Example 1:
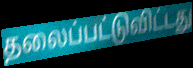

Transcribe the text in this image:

தலைப்பட்டுவிட்டது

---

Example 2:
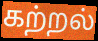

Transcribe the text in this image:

கற்றல்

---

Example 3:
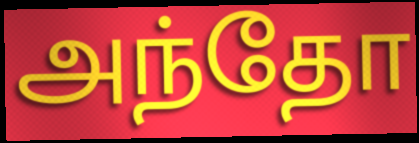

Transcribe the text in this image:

அந்தோ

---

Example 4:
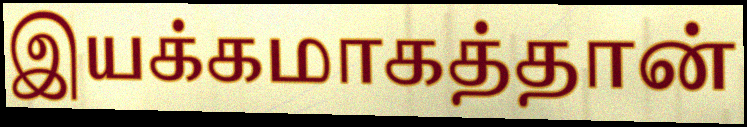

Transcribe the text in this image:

இயக்கமாகத்தான்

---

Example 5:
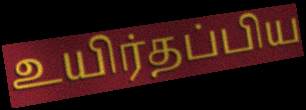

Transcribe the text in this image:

உயிர்தப்பிய